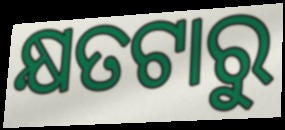
କ୍ଷତଟାରୁ